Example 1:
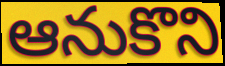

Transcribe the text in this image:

ఆనుకొని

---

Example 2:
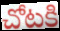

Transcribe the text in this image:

చోటకి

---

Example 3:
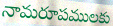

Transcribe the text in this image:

నామరూపములకు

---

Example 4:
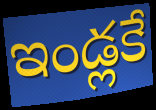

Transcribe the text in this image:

ఇండ్లకే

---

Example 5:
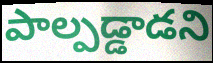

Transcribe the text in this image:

పాల్పడ్డాడని